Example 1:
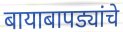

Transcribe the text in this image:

बायाबापड्यांचे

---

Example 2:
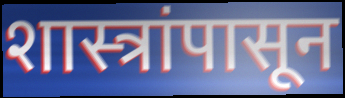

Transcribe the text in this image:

शास्त्रांपासून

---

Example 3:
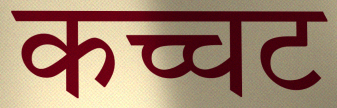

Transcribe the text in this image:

कच्चट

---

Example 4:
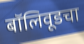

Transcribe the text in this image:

बॉलिवूडचा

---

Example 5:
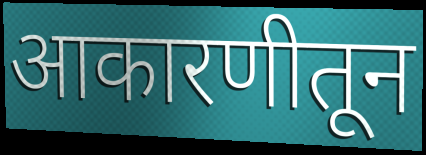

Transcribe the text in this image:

आकारणीतून